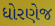
ધોરણેજ